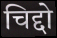
चिद्दो